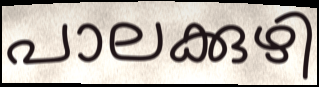
പാലക്കുഴി